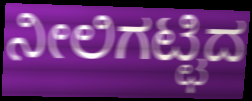
ನೀಲಿಗಟ್ಟಿದ